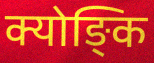
क्योङ्कि